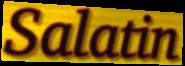
Salatin